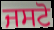
ਜਸਟੋ